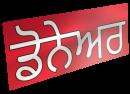
ਡੋਨੇਅਰ